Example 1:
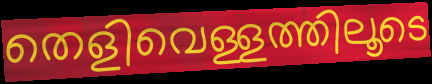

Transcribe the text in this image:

തെളിവെള്ളത്തിലൂടെ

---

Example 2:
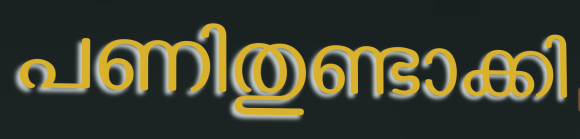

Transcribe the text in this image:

പണിതുണ്ടാക്കി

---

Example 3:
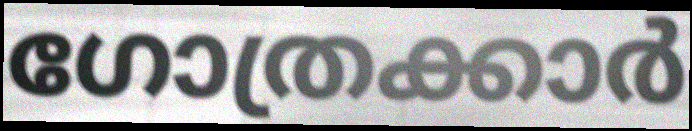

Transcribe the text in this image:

ഗോത്രക്കാർ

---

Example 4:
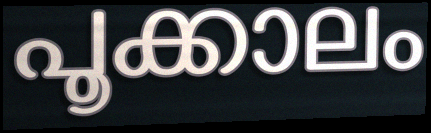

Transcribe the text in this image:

പൂക്കാലം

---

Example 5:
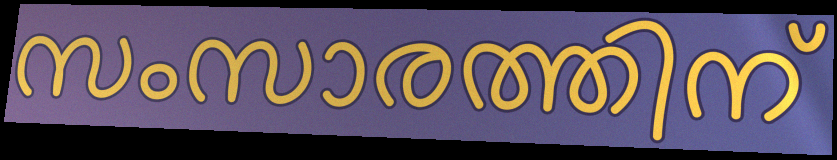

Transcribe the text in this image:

സംസാരത്തിന്